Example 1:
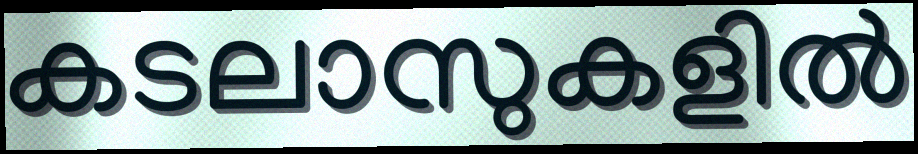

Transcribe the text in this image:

കടലാസുകളിൽ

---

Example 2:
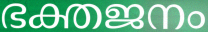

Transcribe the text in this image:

ഭക്തജനം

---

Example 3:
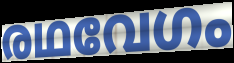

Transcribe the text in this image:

രഥവേഗം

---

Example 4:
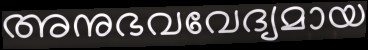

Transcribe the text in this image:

അനുഭവവേദ്യമായ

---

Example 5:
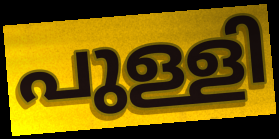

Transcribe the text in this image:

പുള്ളി